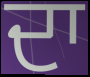
ਦਾ